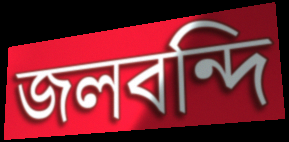
জলবন্দি